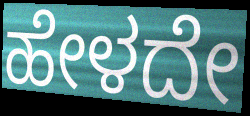
ಹೇಳದೇ